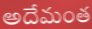
అదేమంత